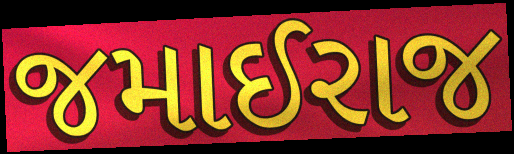
જમાઈરાજ